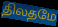
திலதமே